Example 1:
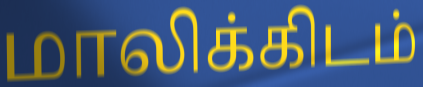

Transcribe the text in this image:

மாலிக்கிடம்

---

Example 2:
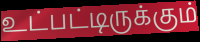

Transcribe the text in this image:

உட்பட்டிருக்கும்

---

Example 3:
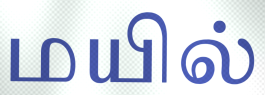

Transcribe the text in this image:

மயில்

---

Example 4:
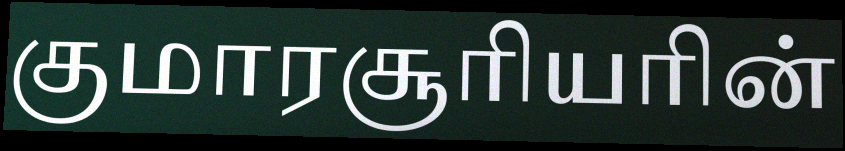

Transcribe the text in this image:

குமாரசூரியரின்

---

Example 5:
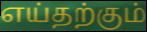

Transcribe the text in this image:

எய்தற்கும்